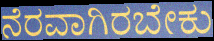
ನೆರವಾಗಿರಬೇಕು